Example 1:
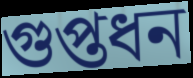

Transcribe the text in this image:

গুপ্তধন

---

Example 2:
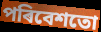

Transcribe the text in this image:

পৰিবেশতো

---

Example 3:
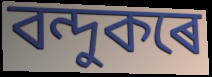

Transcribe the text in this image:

বন্দুকৰে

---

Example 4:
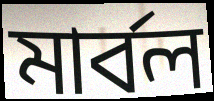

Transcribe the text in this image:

মাৰ্বল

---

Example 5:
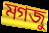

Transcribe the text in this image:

মগজু